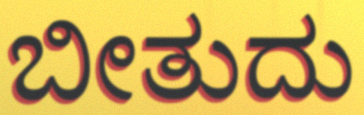
ಬೀತುದು